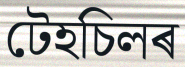
টেহচিলৰ